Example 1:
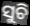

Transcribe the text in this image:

ସୁଚି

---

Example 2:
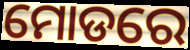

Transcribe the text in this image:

ମୋଡରେ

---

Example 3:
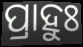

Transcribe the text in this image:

ପ୍ରାହୁଃ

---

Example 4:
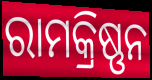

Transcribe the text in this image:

ରାମକ୍ରିଷ୍ଣନ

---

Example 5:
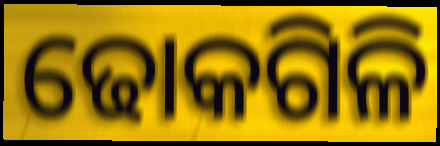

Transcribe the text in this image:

ଢୋକଗିଳି